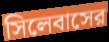
সিলেবাসের